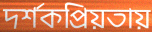
দর্শকপ্রিয়তায়